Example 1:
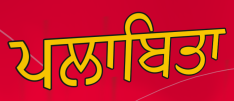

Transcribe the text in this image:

ਪਲਾਬਿਤਾ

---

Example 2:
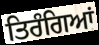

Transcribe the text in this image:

ਤਿਰੰਗਿਆਂ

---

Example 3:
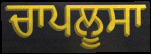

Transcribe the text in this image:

ਚਾਪਲੂਸਾ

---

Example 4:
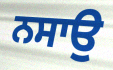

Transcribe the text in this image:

ਨਸਾਉ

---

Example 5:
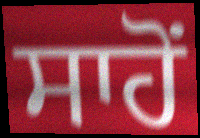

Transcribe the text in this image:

ਸਾਹੋਂ